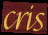
cris